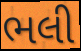
ભલી